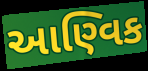
આણ્વિક